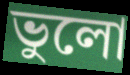
ভুলো